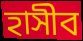
হাসীব